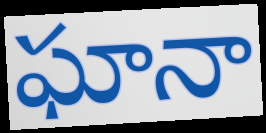
ఘానా